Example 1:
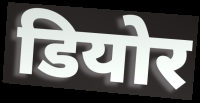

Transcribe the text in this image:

डियोर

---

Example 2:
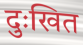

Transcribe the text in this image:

दुःखित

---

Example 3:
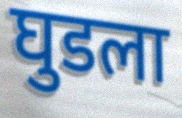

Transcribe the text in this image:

घुडला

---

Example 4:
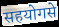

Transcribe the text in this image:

सहयोगसे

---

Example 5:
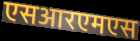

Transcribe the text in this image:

एसआरएमएस